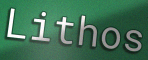
Lithos